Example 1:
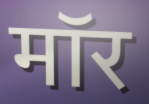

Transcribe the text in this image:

मॉर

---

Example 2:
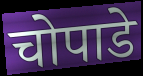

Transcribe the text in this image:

चोपाडे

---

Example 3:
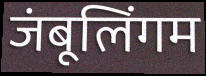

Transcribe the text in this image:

जंबूलिंगम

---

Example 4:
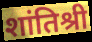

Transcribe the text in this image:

शांतिश्री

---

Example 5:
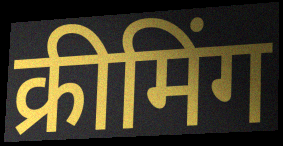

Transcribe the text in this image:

क्रीमिंग